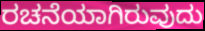
ರಚನೆಯಾಗಿರುವುದು